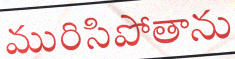
మురిసిపోతాను